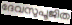
ദേവസുപൂജിത